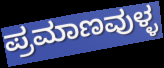
ಪ್ರಮಾಣವುಳ್ಳ